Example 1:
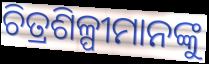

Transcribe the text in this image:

ଚିତ୍ରଶିଳ୍ପୀମାନଙ୍କୁ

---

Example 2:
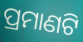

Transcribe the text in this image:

ପ୍ରମାଣଟି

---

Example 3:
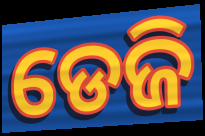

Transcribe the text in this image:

ଡେଜି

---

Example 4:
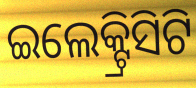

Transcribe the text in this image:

ଇଲେକ୍ଟ୍ରିସିଟି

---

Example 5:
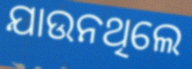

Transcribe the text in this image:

ଯାଉନଥିଲେ